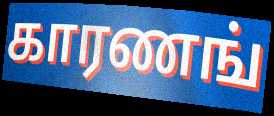
காரணங்